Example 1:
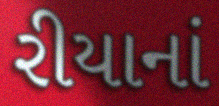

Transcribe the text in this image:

રીયાનાં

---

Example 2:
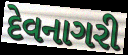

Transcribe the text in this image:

દેવનાગરી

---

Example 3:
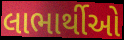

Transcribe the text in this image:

લાભાર્થીઓ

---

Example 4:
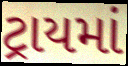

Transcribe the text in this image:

ટ્રાયમાં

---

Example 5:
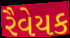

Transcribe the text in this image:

રૈવેયક